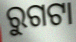
ରୁଗଟା